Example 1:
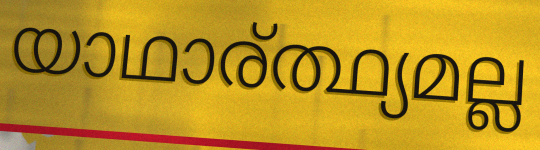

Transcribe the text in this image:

യാഥാര്ത്ഥ്യമല്ല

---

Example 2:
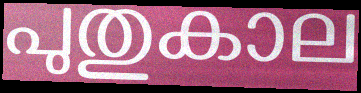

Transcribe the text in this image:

പുതുകാല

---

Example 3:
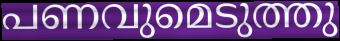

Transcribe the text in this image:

പണവുമെടുത്തു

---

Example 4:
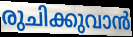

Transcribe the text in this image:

രുചിക്കുവാൻ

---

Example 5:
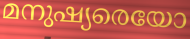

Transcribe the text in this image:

മനുഷ്യരെയോ